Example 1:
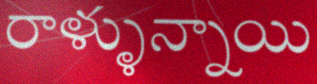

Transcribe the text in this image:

రాళ్ళున్నాయి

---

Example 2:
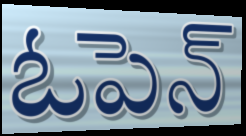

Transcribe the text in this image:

ఓపెన్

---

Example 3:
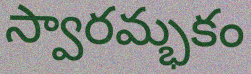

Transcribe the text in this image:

స్వారమ్భకం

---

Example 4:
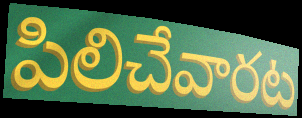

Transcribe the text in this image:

పిలిచేవారట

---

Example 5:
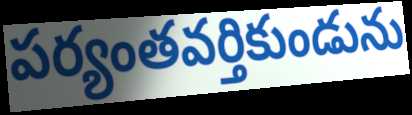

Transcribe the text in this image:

పర్యంతవర్తికుండును